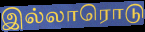
இல்லாரொடு